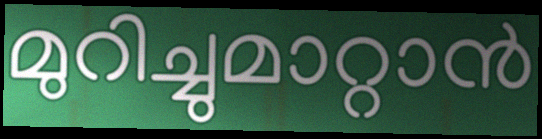
മുറിച്ചുമാറ്റാൻ